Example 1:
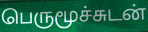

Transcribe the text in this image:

பெருமூச்சுடன்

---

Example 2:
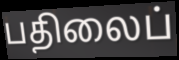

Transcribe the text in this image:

பதிலைப்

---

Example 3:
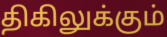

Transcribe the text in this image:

திகிலுக்கும்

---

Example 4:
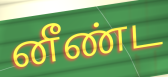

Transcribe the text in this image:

னீண்ட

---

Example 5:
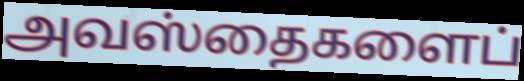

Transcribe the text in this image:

அவஸ்தைகளைப்